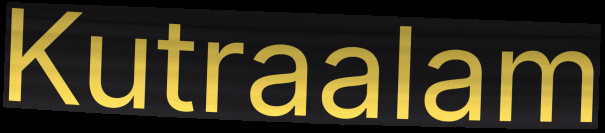
Kutraalam